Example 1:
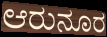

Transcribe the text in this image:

ಆರುನೂರ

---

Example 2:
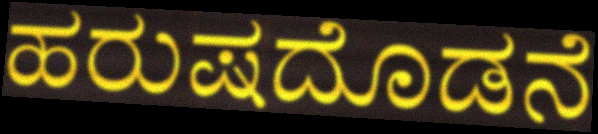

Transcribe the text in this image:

ಹರುಷದೊಡನೆ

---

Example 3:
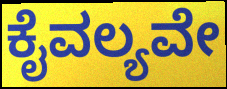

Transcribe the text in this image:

ಕೈವಲ್ಯವೇ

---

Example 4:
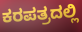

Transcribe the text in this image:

ಕರಪತ್ರದಲ್ಲಿ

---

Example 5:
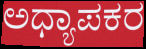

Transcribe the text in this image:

ಅಧ್ಯಾಪಕರ